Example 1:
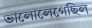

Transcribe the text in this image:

ভালোলেগেছিল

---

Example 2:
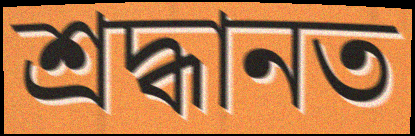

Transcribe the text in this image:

শ্রদ্ধানত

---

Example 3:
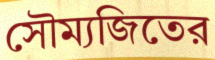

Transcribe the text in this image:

সৌম্যজিতের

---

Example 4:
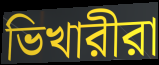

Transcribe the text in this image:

ভিখারীরা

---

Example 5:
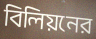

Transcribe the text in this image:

বিলিয়নের